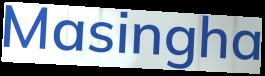
Masingha